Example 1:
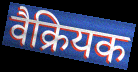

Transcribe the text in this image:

वैक्रियक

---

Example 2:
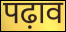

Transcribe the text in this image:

पढ़ाव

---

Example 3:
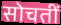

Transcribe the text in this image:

सोचतीं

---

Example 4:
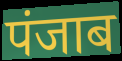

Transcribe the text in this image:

पंजाब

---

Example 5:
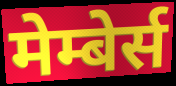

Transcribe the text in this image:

मेम्बेर्स